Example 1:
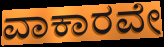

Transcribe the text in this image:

ವಾಕಾರವೇ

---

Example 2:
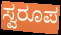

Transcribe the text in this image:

ಸ್ವರೂಪ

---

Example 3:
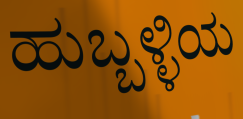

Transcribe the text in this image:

ಹುಬ್ಬಳ್ಳಿಯ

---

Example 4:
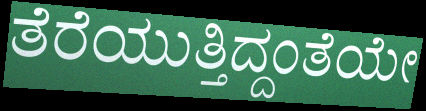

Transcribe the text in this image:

ತೆರೆಯುತ್ತಿದ್ದಂತೆಯೇ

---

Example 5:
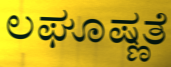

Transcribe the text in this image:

ಲಘೂಷ್ಣತೆ